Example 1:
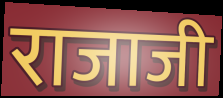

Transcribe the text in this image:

राजाजी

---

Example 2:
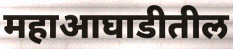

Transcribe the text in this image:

महाआघाडीतील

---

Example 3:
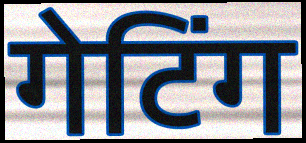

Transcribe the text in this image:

गेटिंग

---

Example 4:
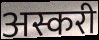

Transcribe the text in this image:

अस्करी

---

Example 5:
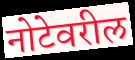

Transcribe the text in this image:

नोटेवरील